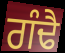
ਗੰਢੈ